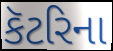
કૅટરિના